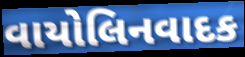
વાયોલિનવાદક